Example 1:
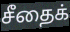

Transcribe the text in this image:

சீதைக்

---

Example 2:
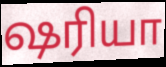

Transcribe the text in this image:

ஷரியா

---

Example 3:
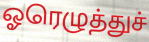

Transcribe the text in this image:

ஓரெழுத்துச்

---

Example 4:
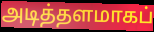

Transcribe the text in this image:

அடித்தளமாகப்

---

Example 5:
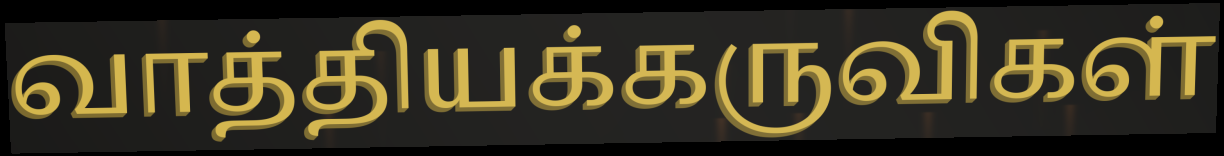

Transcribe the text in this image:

வாத்தியக்கருவிகள்